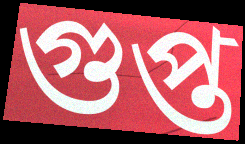
গুপ্ত